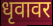
धृवावर